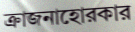
ক্রাজনাহোরকার